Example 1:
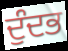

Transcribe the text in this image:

ਦੁੰਦਭ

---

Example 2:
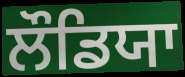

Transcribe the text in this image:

ਲੌਡਿਯਾ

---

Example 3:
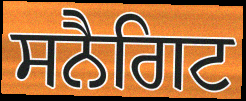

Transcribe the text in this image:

ਸਨੈਗਿਟ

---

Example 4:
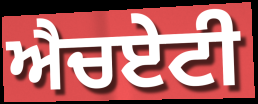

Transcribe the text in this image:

ਐਚਏਟੀ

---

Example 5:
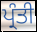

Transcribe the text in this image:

ਪ੍ਰੰਤੀ